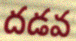
దడవ